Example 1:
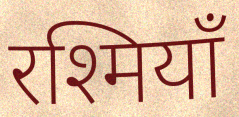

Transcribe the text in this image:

रश्मियाँ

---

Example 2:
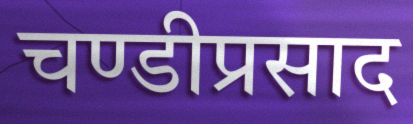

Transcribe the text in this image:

चण्डीप्रसाद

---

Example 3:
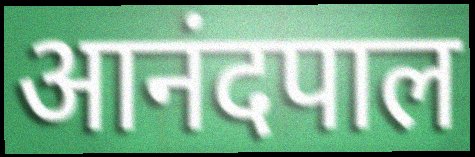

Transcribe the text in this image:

आनंदपाल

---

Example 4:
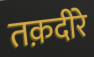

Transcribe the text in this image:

तक़दीरे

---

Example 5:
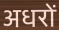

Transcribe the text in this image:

अधरों